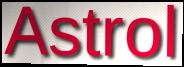
Astrol